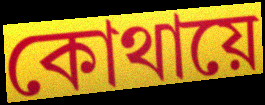
কোথায়ে